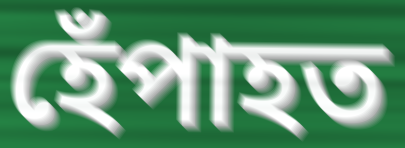
হেঁপাহত